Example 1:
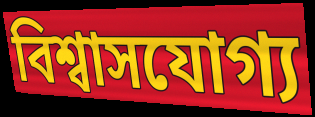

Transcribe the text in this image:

বিশ্বাসযোগ্য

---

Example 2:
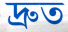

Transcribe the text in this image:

দ্ৰুত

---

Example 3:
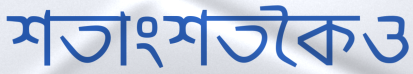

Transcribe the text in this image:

শতাংশতকৈও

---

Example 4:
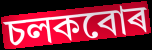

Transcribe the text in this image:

চলকবোৰ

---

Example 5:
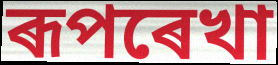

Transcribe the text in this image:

ৰূপৰেখা